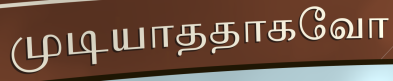
முடியாததாகவோ